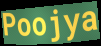
Poojya